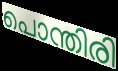
പൊന്തിരി